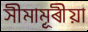
সীমামূৰীয়া